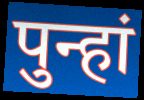
पुन्हां